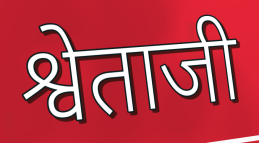
श्वेताजी